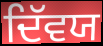
ਦਿੱਵਯ